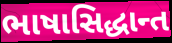
ભાષાસિદ્ધાન્ત